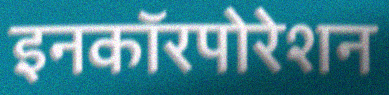
इनकॉरपोरेशन